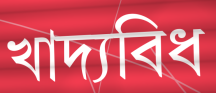
খাদ্যবিধ